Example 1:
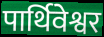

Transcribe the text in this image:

पार्थिवेश्वर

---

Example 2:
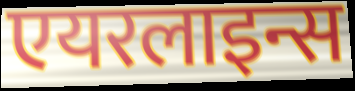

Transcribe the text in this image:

एयरलाइन्स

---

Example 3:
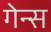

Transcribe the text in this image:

गेन्स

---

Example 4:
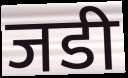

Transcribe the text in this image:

जडी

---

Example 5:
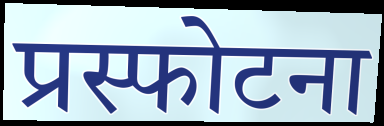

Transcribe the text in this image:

प्रस्फोटना